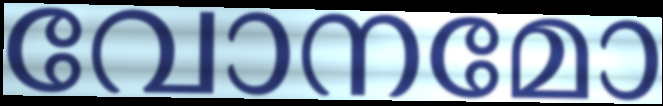
വോനമോ